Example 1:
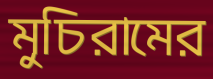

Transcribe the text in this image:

মুচিরামের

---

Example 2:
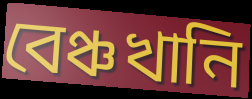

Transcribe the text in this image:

বেঞ্চখানি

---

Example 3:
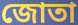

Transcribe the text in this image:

জোতা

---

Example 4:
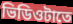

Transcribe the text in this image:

ভিডিওটাতে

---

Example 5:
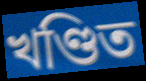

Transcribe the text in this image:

খণ্ডিত